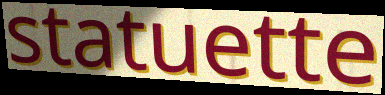
statuette